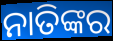
ନାତିଙ୍କର